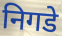
निगडे